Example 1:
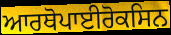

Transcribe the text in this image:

ਆਰਥੋਪਾਈਰੋਕਸਿਨ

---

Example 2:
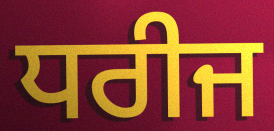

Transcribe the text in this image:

ਧਰੀਜ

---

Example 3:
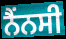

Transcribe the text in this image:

ਨੈਂਨਸੀ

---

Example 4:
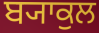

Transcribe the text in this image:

ਬ੍ਯਾਕੁਲ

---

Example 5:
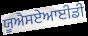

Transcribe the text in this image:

ਯੂਐਸਏਆਈਡੀ